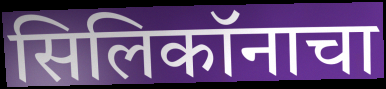
सिलिकॉनाचा